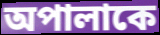
অপালাকে